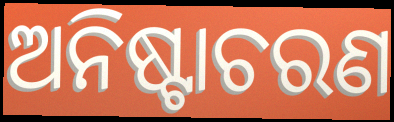
ଅନିଷ୍ଟାଚରଣ